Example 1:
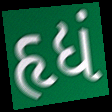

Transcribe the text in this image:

હૃદ્યં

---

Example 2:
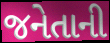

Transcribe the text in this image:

જનેતાની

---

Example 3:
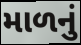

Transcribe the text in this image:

માળનું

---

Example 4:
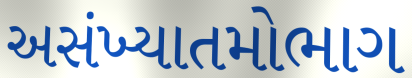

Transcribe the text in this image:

અસંખ્યાતમોભાગ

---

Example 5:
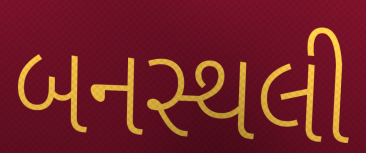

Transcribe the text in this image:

બનસ્થલી